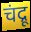
चंद्रू